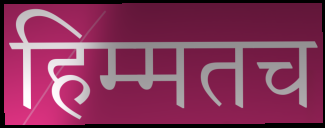
हिम्मतच